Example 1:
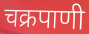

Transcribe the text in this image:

चक्रपाणी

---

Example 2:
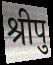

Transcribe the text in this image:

श्रीपु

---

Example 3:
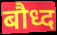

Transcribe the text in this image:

बौध्द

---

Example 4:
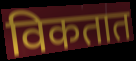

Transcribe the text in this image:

विकतात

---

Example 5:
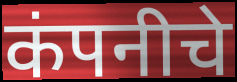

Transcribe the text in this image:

कंपनीचे